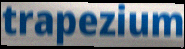
trapezium